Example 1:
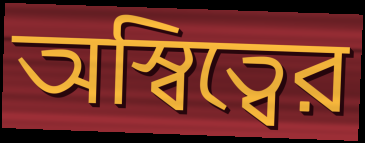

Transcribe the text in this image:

অস্বিত্বের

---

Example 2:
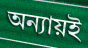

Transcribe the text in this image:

অন্যায়ই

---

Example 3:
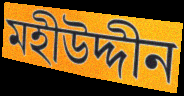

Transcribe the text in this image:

মহীউদ্দীন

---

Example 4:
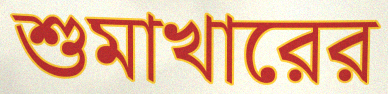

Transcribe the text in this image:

শুমাখারের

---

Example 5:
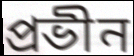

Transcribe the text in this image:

প্রভীন